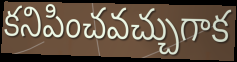
కనిపించవచ్చుగాక